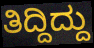
ತಿದ್ದಿದ್ದು